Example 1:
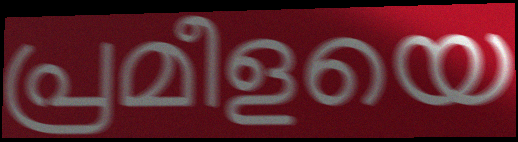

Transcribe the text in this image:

പ്രമീളയെ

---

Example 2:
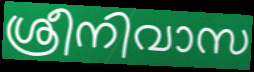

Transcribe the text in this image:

ശ്രീനിവാസ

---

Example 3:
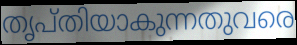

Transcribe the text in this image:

തൃപ്തിയാകുന്നതുവരെ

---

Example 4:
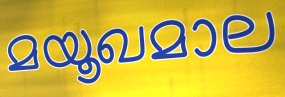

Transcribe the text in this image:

മയൂഖമാല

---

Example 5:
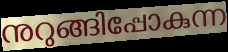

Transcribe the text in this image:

നുറുങ്ങിപ്പോകുന്ന